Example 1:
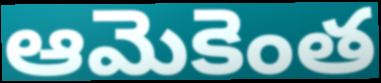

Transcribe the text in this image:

ఆమెకెంత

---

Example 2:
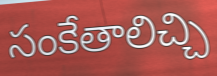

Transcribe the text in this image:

సంకేతాలిచ్చి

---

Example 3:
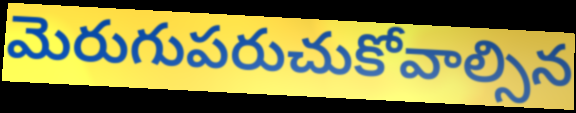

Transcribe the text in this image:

మెరుగుపరుచుకోవాల్సిన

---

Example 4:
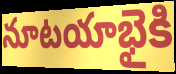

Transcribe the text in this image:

నూటయాభైకి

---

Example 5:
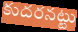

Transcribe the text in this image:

కుదరనట్టు